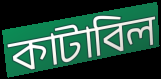
কাটাবিল